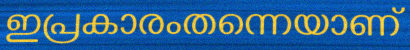
ഇപ്രകാരംതന്നെയാണ്